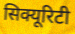
सिक्यूरिटी